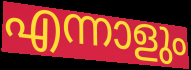
എന്നാളും